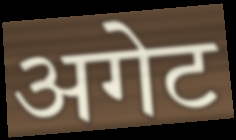
अगेट